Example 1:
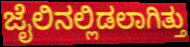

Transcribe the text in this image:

ಜೈಲಿನಲ್ಲಿಡಲಾಗಿತ್ತು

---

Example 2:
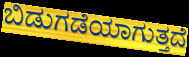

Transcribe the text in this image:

ಬಿಡುಗಡೆಯಾಗುತ್ತದೆ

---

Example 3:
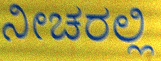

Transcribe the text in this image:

ನೀಚರಲ್ಲಿ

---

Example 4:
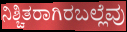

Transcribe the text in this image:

ನಿಶ್ಚಿತರಾಗಿರಬಲ್ಲೆವು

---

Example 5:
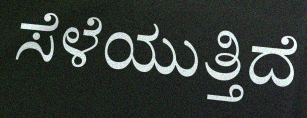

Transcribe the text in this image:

ಸೆಳೆಯುತ್ತಿದೆ